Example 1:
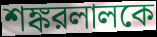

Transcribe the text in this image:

শঙ্করলালকে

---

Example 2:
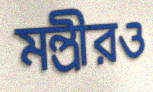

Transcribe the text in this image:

মন্ত্রীরও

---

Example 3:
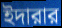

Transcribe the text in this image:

ইদারার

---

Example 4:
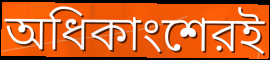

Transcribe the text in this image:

অধিকাংশেরই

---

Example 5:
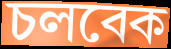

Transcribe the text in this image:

চলবেক